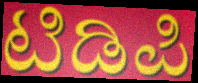
ಟಿಡಿಪಿ